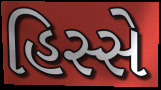
હિસ્સે